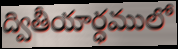
ద్వితీయార్ధములో